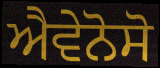
ਐਵੇਨੋਸੋ